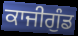
ਕਾਜੀਗੁੰਡ